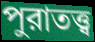
পুরাতত্ত্ব